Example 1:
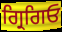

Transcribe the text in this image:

ਗ੍ਰਿਗਿਓ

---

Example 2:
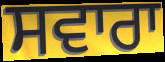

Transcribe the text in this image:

ਸਵਾਰਾ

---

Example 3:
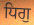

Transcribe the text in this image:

ਧਿਗੁ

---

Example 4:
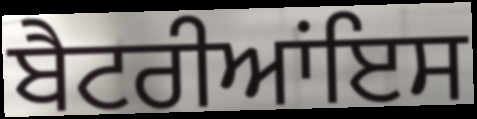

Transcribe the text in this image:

ਬੈਟਰੀਆਂਇਸ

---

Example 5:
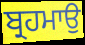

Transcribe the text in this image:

ਬ੍ਰਹਮਾਉ